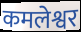
कमलेश्वर